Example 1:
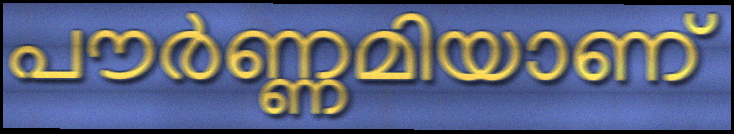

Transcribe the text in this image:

പൗർണ്ണമിയാണ്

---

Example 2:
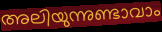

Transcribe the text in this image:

അലിയുന്നുണ്ടാവാം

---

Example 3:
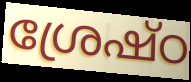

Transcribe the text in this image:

ശ്രേഷ്ഠ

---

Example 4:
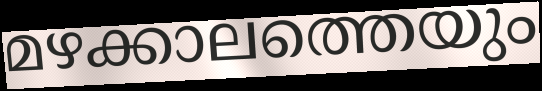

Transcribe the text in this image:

മഴക്കാലത്തെയും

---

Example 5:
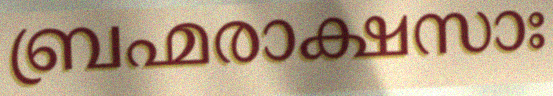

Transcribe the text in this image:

ബ്രഹ്മരാക്ഷസാഃ